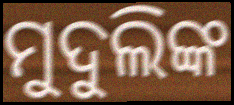
ମୁଦୁଲିଙ୍କ